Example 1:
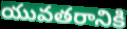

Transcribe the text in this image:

యువతరానికి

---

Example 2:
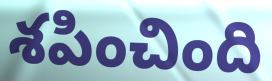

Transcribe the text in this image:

శపించింది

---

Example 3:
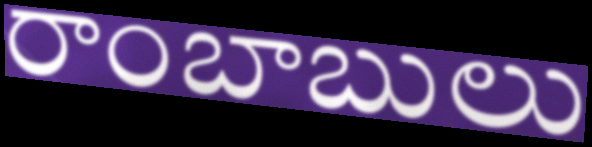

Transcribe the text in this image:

రాంబాబులు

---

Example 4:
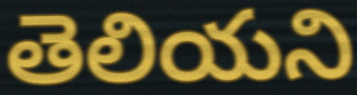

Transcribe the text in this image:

తెలియని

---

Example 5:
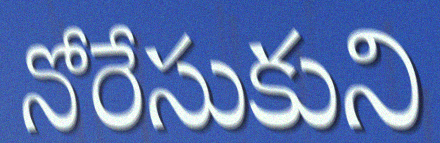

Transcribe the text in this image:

నోరేసుకుని